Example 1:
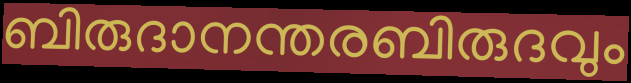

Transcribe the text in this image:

ബിരുദാനന്തരബിരുദവും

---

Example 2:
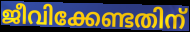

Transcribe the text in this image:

ജീവിക്കേണ്ടതിന്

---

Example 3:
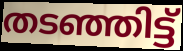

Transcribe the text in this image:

തടഞ്ഞിട്ട്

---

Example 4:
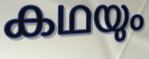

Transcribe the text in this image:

കഥയും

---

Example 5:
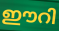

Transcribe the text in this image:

ഈറി